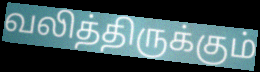
வலித்திருக்கும்